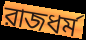
রাজধর্ম